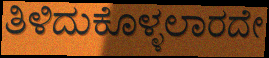
ತಿಳಿದುಕೊಳ್ಳಲಾರದೇ